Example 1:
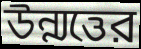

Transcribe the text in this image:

উন্মত্তের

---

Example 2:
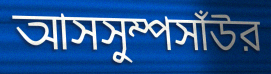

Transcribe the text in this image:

আসসুম্পসাঁউর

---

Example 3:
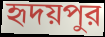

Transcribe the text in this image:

হৃদয়পুর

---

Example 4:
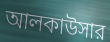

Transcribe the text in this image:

আলকাউসার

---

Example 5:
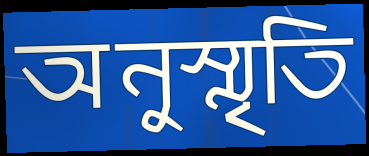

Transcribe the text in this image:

অনুস্মৃতি